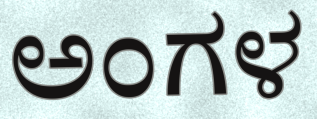
ಅಂಗಳ